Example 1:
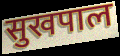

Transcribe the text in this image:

सुखपाल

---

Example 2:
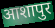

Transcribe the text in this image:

आशापुर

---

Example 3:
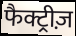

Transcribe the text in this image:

फैक्ट्रीज़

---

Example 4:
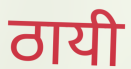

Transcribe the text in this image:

ठायी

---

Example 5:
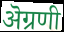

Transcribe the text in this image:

ऄग्रणी